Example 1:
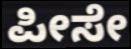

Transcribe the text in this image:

ಪೀಸೇ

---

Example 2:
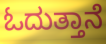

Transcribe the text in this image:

ಓದುತ್ತಾನೆ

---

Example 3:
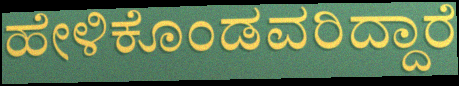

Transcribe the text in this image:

ಹೇಳಿಕೊಂಡವರಿದ್ದಾರೆ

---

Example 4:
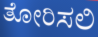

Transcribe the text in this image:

ತೋರಿಸಲಿ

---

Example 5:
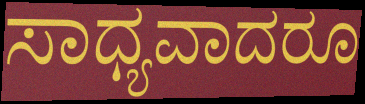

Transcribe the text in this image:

ಸಾಧ್ಯವಾದರೂ